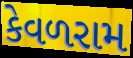
કેવળરામ